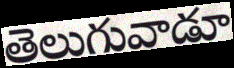
తెలుగువాడూ